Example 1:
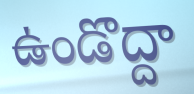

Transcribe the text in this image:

ఉండొద్దా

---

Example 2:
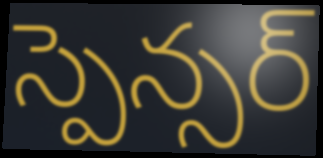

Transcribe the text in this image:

స్పెన్సర్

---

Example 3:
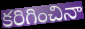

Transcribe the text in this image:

కరిగించినా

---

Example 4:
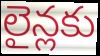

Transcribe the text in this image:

లైన్లకు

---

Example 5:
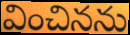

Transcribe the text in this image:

వించినను